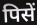
पिसें